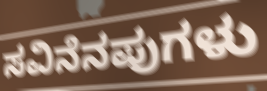
ಸವಿನೆನಪುಗಳು